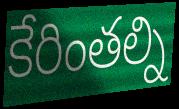
కేరింతల్ని